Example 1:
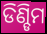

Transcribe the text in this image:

ଡିଣ୍ଡିମ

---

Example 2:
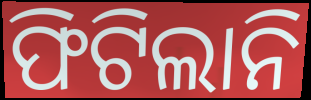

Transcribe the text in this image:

ଫିଟିଲାନି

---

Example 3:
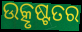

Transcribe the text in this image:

ଉତ୍କୃଷ୍ଟତର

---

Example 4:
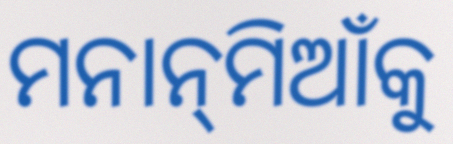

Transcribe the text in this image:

ମନାନ୍‌ମିଆଁକୁ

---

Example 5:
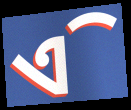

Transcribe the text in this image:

ଏି